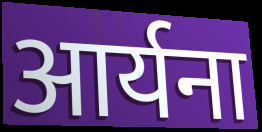
आर्यना